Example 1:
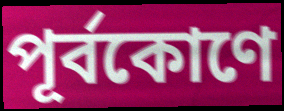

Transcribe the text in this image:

পূর্বকোণে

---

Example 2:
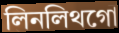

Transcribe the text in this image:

লিনলিথগো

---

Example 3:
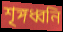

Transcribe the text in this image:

শৃঙ্গধ্বনি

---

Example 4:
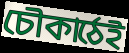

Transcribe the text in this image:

চৌকাঠেই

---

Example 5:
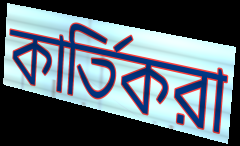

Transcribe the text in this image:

কার্তিকরা